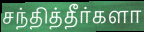
சந்தித்தீர்களா